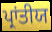
ਪ੍ਰਾਂਤੀਯ